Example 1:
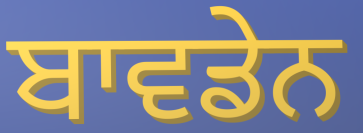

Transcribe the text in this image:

ਬਾਵਡੇਨ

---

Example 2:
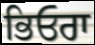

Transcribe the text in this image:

ਭਿਓਰਾ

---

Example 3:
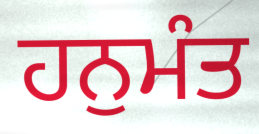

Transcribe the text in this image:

ਹਨੁਮੰਤ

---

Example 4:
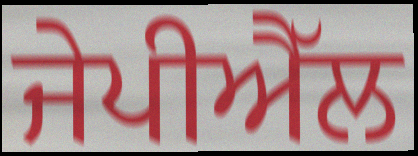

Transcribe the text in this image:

ਜੇਪੀਐੱਲ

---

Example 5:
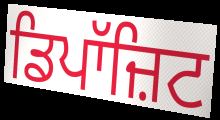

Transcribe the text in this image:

ਡਿਪਾੱਜ਼ਿਟ